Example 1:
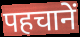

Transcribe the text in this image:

पहचानें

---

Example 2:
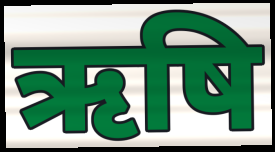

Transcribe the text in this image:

ऋषि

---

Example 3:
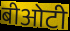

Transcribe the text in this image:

बीओटी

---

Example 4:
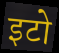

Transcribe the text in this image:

इटो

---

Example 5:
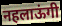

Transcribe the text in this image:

नहलाऊंगी